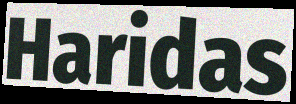
Haridas